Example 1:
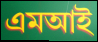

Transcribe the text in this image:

এমআই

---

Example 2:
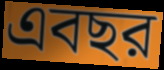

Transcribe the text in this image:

এবছর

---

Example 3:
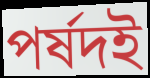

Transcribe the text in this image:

পর্ষদই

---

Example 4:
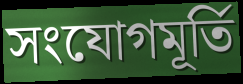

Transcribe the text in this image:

সংযোগমূর্তি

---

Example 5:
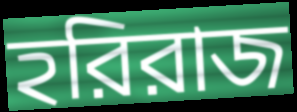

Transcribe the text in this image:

হরিরাজ